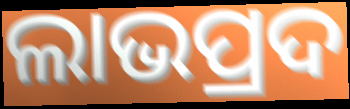
ଲାଭପ୍ରଦ